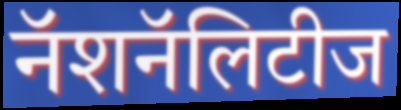
नॅशनॅलिटीज